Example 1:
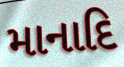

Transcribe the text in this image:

માનાદિ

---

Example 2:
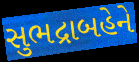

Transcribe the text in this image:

સુભદ્રાબહેને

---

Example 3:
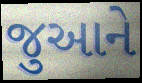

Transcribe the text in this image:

જુઆને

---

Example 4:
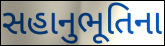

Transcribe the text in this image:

સહાનુભૂતિના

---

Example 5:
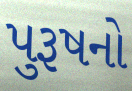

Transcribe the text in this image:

પુરૂષનો